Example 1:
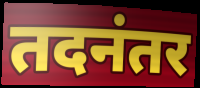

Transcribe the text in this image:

तदनंतर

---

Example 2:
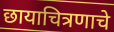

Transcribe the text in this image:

छायाचित्रणाचे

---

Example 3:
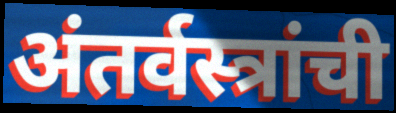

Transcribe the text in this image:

अंतर्वस्त्रांची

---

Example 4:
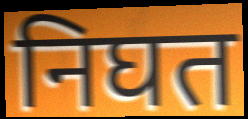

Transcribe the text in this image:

निघत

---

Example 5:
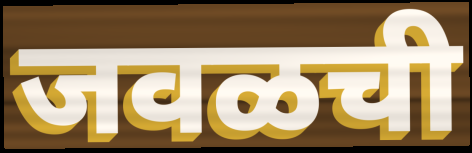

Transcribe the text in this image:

जवळची